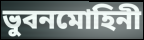
ভুবনমোহিনী